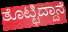
ತೊಟ್ಟಿದ್ದಾನೆ